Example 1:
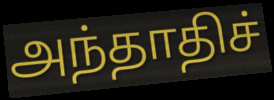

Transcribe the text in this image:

அந்தாதிச்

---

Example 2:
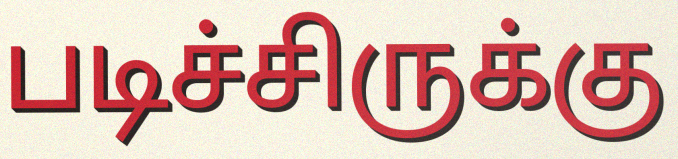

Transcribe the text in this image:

படிச்சிருக்கு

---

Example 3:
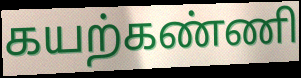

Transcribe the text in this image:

கயற்கண்ணி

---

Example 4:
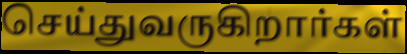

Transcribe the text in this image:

செய்துவருகிறார்கள்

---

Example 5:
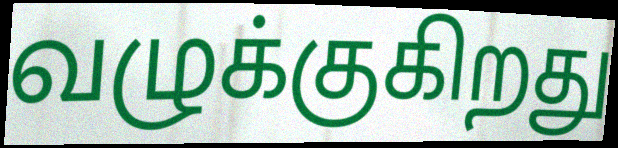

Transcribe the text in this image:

வழுக்குகிறது